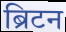
ब्रिटन